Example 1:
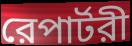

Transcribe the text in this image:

রেপার্টরী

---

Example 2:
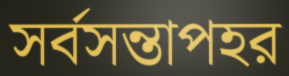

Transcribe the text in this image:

সর্বসন্তাপহর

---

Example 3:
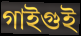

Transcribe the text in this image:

গাইগুই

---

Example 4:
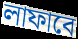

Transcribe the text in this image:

লাফাবে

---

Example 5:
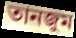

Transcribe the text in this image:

তানজুম